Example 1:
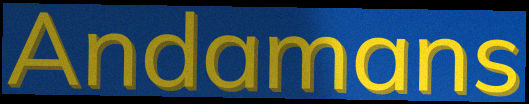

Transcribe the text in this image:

Andamans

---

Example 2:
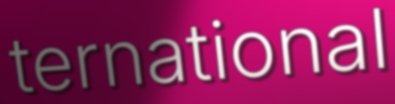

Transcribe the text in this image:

ternational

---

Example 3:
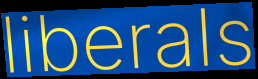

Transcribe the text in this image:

liberals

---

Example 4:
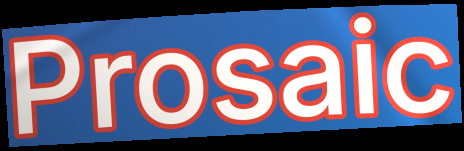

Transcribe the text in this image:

Prosaic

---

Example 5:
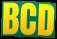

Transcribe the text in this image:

BCD